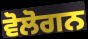
ਵੋਲੋਗਨ